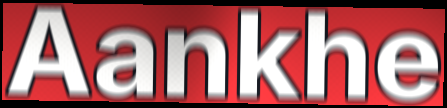
Aankhe